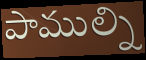
పాముల్ని